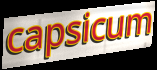
capsicum